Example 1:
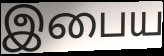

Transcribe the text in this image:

இபைய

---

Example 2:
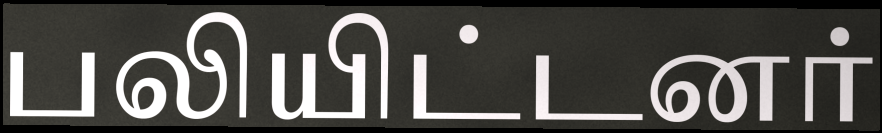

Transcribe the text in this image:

பலியிட்டனர்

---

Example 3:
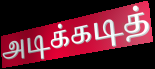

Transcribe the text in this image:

அடிக்கடித்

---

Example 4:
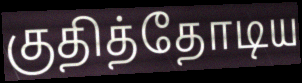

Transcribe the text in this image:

குதித்தோடிய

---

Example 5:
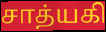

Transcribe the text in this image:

சாத்யகி